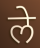
ले